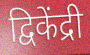
द्विकेंद्री